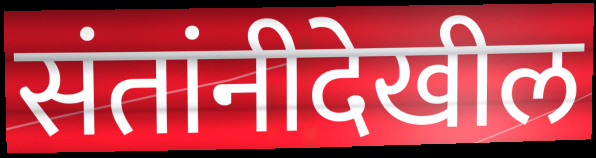
संतांनीदेखील